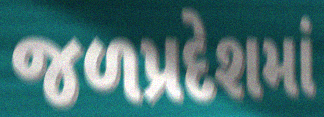
જળપ્રદેશમાં